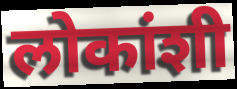
लोकांशी